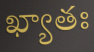
ఖ్యాతః